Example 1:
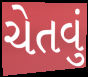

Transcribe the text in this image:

ચેતવું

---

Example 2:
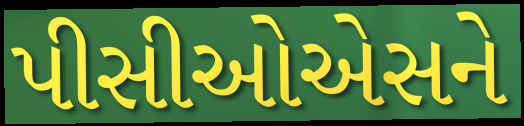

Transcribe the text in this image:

પીસીઓએસને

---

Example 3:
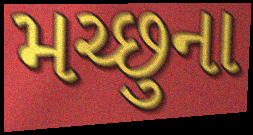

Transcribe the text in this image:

મચ્છુના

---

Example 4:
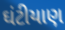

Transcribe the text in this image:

ઘંટીયાણ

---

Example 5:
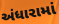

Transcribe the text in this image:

અંધારામાં